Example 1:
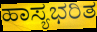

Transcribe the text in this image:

ಹಾಸ್ಯಭರಿತ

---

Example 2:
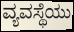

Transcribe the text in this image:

ವ್ಯವಸ್ಥೆಯು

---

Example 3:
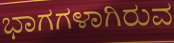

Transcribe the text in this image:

ಭಾಗಗಳಾಗಿರುವ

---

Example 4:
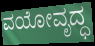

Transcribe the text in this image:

ವಯೋವೃದ್ಧ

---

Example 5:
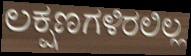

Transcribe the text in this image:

ಲಕ್ಷಣಗಳಿರಲಿಲ್ಲ